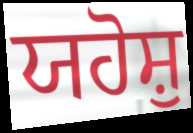
ਯਹੋਸ਼ੁ